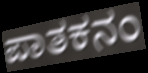
ಪಾತಕನಂ